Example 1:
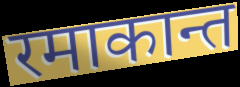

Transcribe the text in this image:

रमाकान्त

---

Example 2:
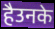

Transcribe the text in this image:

हैउनके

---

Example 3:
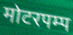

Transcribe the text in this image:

मोटरपम्प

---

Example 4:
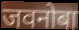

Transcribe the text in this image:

जवनोबा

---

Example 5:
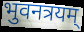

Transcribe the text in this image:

भुवनत्रयम्